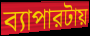
ব্যাপারটায়